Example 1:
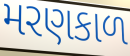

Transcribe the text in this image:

મરણકાળ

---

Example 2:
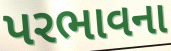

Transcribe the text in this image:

પરભાવના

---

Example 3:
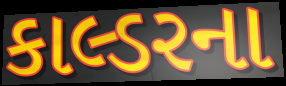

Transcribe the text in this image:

કાલ્ડરના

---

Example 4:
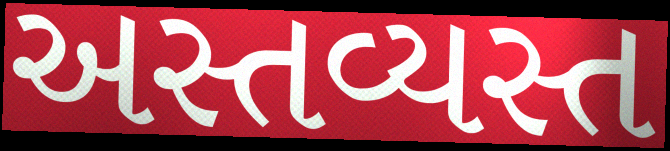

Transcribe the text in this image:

અસ્તવ્યસ્ત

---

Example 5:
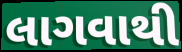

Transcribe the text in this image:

લાગવાથી